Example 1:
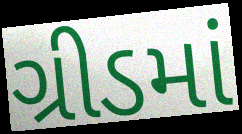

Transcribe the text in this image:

ગ્રીડમાં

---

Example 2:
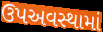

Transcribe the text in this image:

ઉપઅવસ્થામાં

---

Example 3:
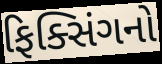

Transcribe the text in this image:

ફિક્સિંગનો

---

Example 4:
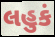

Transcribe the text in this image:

લહુકં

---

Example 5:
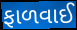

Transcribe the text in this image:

ફાળવાઈ